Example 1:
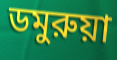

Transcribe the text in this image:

ডমুরুয়া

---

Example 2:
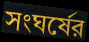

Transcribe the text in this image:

সংঘর্ষের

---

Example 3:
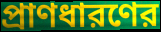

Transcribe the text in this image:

প্রাণধারণের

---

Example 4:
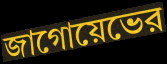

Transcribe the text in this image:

জাগোয়েভের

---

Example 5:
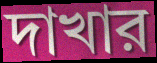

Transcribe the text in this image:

দাখার